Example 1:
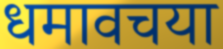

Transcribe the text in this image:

धमावचया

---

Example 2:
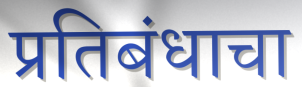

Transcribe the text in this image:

प्रतिबंधाचा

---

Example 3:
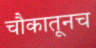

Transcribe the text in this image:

चौकातूनच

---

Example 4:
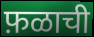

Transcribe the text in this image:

फ़ळाची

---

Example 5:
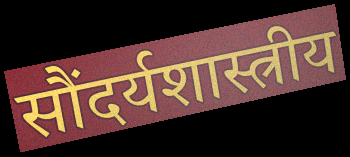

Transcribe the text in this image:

सौंदर्यशास्त्रीय